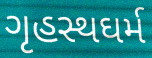
ગૃહસ્થઘર્મ